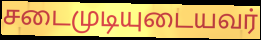
சடைமுடியுடையவர்